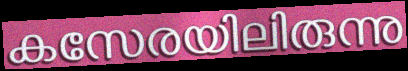
കസേരയിലിരുന്നു